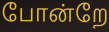
போன்றே